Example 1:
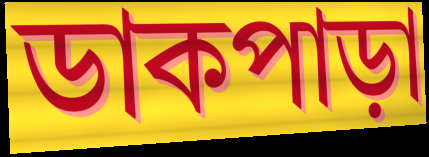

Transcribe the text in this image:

ডাকপাড়া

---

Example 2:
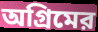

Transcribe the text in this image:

অগ্রিমের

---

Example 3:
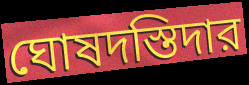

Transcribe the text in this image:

ঘোষদস্তিদার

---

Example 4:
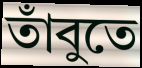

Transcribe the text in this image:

তাঁবুতে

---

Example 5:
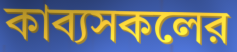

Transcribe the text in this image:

কাব্যসকলের